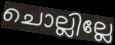
ചൊല്ലില്ലേ